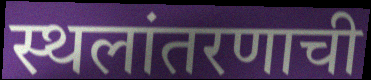
स्थलांतरणाची